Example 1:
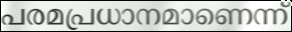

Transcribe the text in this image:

പരമപ്രധാനമാണെന്ന്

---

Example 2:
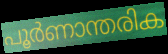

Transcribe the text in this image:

പൂർണാന്തരിക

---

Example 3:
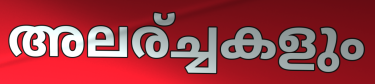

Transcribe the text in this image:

അലര്ച്ചകളും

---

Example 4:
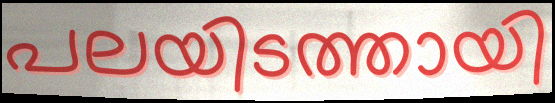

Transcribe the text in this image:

പലയിടത്തായി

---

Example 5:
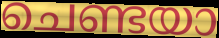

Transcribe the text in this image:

ചെണ്ടയാ